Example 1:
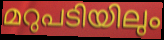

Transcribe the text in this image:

മറുപടിയിലും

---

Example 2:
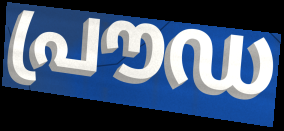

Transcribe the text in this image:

പ്രൗഡ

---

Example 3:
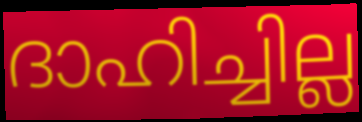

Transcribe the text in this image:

ദാഹിച്ചില്ല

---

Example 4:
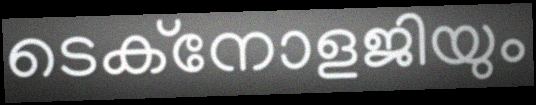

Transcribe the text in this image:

ടെക്നോളജിയും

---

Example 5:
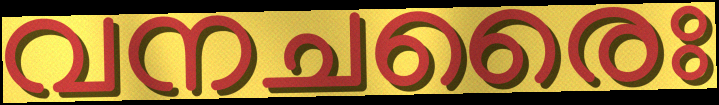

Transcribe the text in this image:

വനചരൈഃ